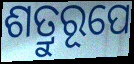
ଶତ୍ରୁରୂପେ